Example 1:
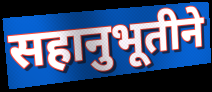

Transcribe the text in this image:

सहानुभूतीने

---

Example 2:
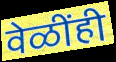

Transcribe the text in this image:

वेळींही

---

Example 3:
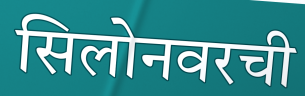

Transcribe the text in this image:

सिलोनवरची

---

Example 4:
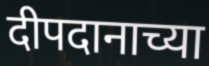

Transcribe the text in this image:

दीपदानाच्या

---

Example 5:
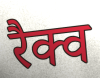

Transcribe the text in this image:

रैक्व